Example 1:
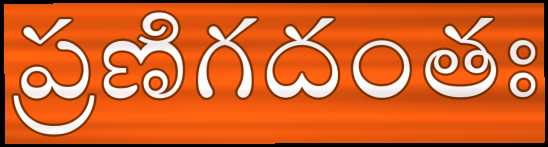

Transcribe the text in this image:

ప్రణిగదంతః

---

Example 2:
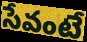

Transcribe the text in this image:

సేవంటే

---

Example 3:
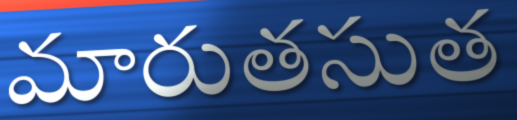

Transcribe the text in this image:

మారుతసుత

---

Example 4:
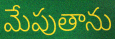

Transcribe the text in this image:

మేపుతాను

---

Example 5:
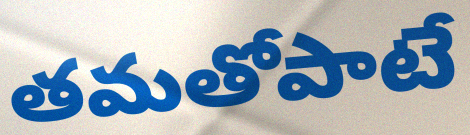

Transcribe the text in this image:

తమతోపాటే